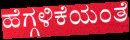
ಹೆಗ್ಗಳಿಕೆಯಂತೆ